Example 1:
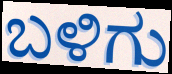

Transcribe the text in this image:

ಬಳಿಗು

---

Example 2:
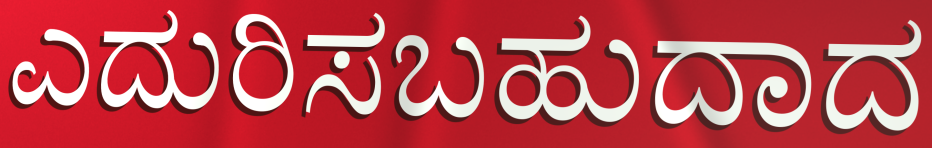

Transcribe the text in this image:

ಎದುರಿಸಬಹುದಾದ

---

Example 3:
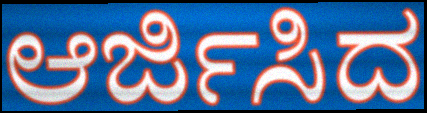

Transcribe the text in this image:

ಆರ್ಜಿಸಿದ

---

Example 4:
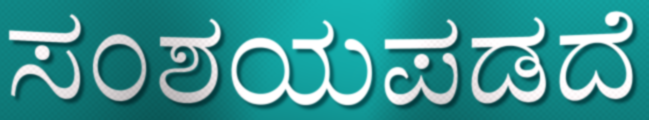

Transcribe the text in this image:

ಸಂಶಯಪಡದೆ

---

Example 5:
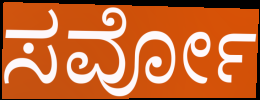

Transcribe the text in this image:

ಸರ್ವೋ